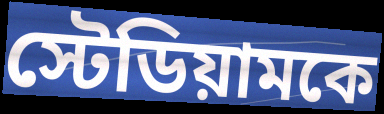
স্টেডিয়ামকে